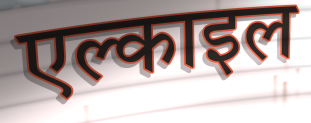
एल्काइल